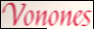
Vonones